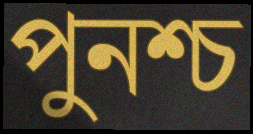
পুনশ্চ